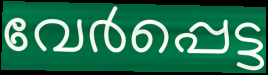
വേർപ്പെട്ട